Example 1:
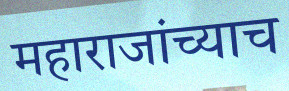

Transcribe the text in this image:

महाराजांच्याच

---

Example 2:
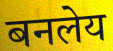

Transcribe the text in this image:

बनलेय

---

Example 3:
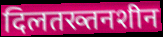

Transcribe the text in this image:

दिलतख्तनशीन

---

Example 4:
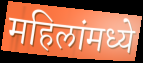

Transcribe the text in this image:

महिलांमध्ये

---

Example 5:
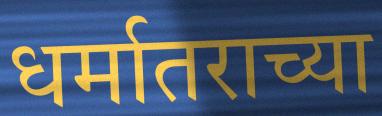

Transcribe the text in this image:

धर्मातराच्या